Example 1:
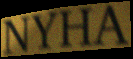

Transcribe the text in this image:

NYHA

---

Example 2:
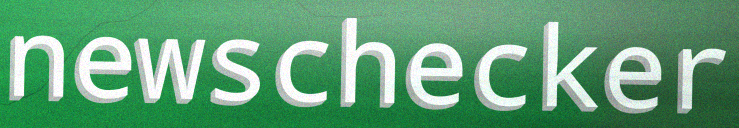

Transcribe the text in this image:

newschecker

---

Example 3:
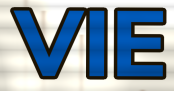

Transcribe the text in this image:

VIE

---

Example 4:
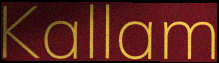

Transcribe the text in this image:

Kallam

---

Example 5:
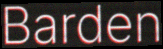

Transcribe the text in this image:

Barden